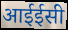
आईईसी